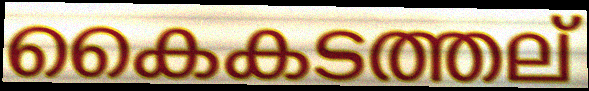
കൈകടത്തല്